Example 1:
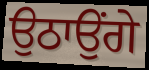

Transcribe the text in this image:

ਉਠਾਉਂਗੇ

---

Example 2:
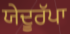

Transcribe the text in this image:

ਯੇਦੂਰੱਪਾ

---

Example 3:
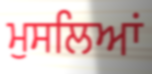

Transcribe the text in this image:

ਮੁਸਲਿਆਂ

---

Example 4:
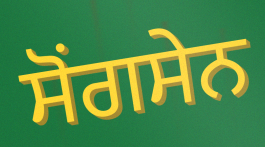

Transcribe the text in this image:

ਸੋਂਗਸੇਨ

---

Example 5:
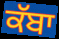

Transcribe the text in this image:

ਕੱਬਾ